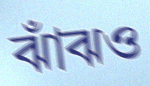
ঝাঁঝও